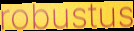
robustus